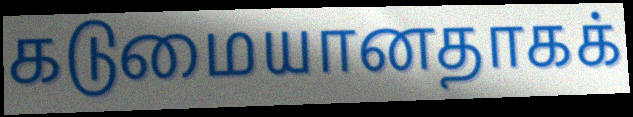
கடுமையானதாகக்